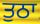
ਤੁਠਾ